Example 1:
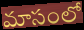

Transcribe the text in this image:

మాసంలో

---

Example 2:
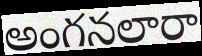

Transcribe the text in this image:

అంగనలారా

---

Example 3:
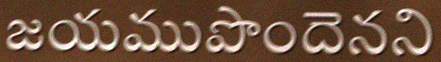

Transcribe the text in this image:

జయముపొందెనని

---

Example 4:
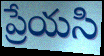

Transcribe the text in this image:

ప్రేయసి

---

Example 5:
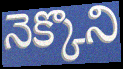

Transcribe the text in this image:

నెక్కొని